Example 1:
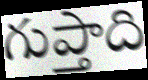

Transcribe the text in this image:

గుప్తాది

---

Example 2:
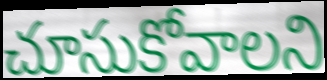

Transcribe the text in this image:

చూసుకోవాలని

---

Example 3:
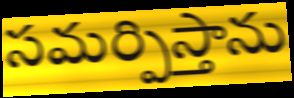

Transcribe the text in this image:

సమర్పిస్తాను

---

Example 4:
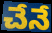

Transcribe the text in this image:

చేనే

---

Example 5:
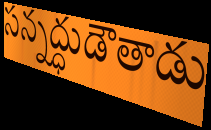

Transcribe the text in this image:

సన్నద్ధుడౌతాడు